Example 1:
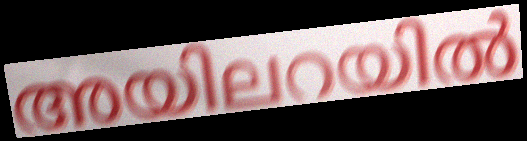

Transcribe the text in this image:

അയിലറയിൽ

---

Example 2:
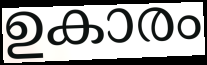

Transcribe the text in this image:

ഉകാരം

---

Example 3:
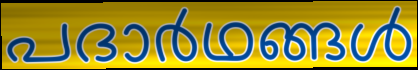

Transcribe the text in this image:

പദാർഥങ്ങൾ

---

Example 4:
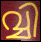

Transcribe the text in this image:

വ്വി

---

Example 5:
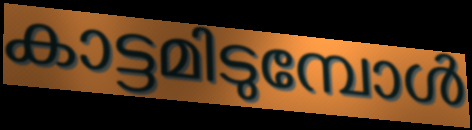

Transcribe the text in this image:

കാട്ടമിടുമ്പോൾ